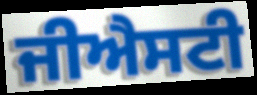
ਜੀਐਸਟੀ